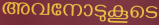
അവനോടുകൂടെ